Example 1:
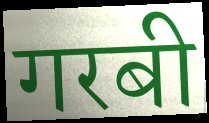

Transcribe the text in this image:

गरबी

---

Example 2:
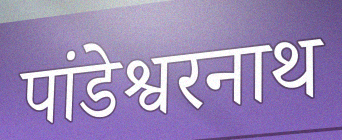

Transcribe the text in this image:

पांडेश्वरनाथ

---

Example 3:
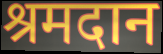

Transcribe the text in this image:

श्रमदान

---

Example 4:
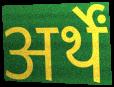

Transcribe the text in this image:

अर्थें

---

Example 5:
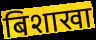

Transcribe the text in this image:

बिशाखा